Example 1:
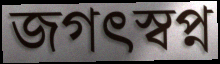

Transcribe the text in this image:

জগৎস্বপ্ন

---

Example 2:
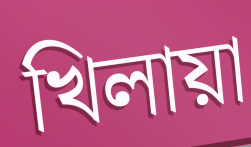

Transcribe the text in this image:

খিলায়া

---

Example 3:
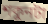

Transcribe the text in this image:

শকুনটা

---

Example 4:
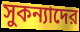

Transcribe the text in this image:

সুকন্যাদের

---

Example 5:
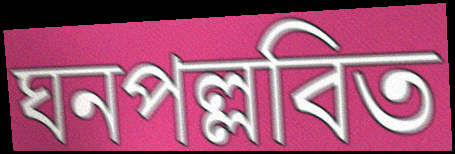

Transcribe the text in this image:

ঘনপল্লবিত